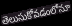
తెలుసుకోవడంలోనూ